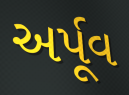
અર્પૂવ